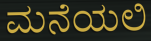
ಮನೆಯಲಿ